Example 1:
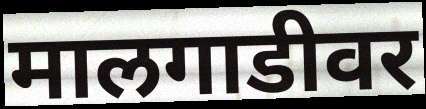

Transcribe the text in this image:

मालगाडीवर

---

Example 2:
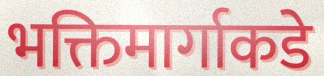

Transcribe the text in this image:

भक्तिमार्गाकडे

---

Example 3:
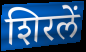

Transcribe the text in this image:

शिरलें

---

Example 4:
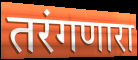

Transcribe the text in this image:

तरंगणारा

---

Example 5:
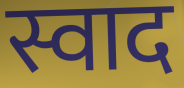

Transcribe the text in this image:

स्वाद